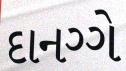
દાનગ્ગે